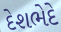
દેશભેદે